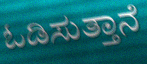
ಓಡಿಸುತ್ತಾನೆ